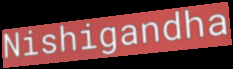
Nishigandha